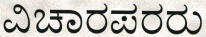
ವಿಚಾರಪರರು